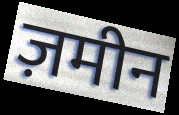
ज़मीन